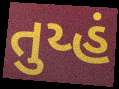
તુય્હં